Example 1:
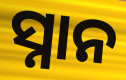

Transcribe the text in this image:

ସ୍ନାନ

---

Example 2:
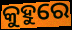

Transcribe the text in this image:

କୁହୁରେ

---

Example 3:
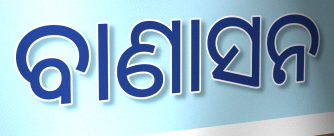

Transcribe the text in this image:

ବାଣାସନ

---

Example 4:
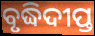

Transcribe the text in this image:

ବୃଦ୍ଧିଦୀପ୍ତ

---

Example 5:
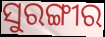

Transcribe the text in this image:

ସୁରଙ୍ଗୀର